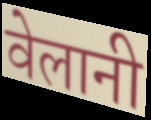
वेलानी